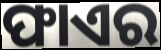
ଫାଏର